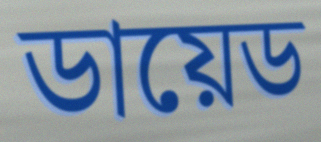
ডায়েড